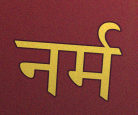
नर्म